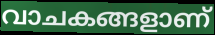
വാചകങ്ങളാണ്